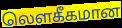
லெளகீகமான